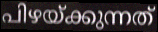
പിഴയ്ക്കുന്നത്